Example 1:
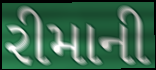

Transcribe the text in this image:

રીમાની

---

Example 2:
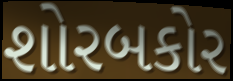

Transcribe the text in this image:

શોરબકોર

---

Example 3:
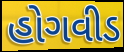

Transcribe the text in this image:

હોગવીડ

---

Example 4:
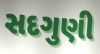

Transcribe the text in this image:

સદગુણી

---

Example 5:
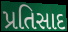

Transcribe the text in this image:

પ્રતિસાદ